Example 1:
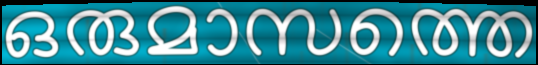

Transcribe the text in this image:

ഒരുമാസത്തെ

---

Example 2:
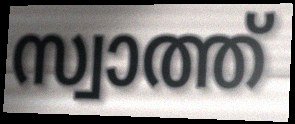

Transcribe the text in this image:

സ്വാത്ത്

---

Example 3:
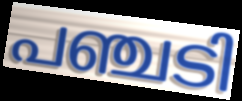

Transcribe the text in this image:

പഞ്ചടി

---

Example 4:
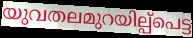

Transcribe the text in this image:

യുവതലമുറയില്പ്പെട്ട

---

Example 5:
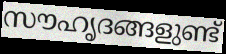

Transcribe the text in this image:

സൗഹൃദങ്ങളുണ്ട്